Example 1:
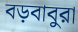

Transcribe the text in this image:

বড়বাবুরা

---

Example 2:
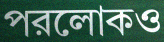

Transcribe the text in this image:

পরলোকও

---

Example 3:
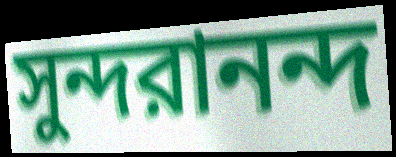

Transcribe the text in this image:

সুন্দরানন্দ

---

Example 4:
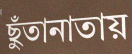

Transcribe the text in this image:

ছুঁতানাতায়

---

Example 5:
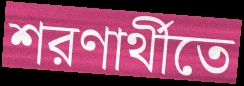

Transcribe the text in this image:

শরণার্থীতে